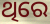
ଥିରେ